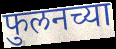
फुलनच्या